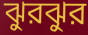
ঝুরঝুর